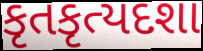
કૃતકૃત્યદશા